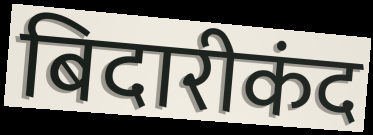
बिदारीकंद